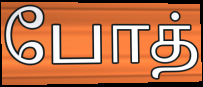
போத்